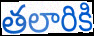
తలారికి